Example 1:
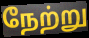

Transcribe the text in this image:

நேற்று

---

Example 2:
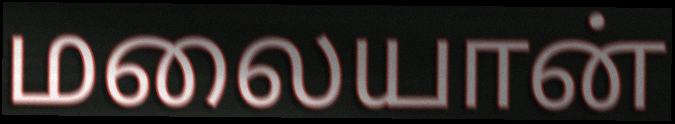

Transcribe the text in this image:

மலையான்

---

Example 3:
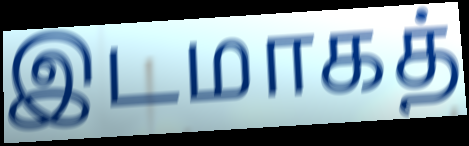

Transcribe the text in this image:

இடமாகத்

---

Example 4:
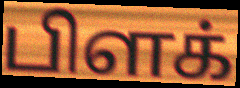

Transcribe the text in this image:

பிளக்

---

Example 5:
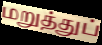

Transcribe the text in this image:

மறுத்துப்